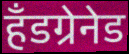
हॅंडग्रेनेड